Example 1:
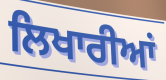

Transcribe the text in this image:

ਲਿਖਾਰੀਆਂ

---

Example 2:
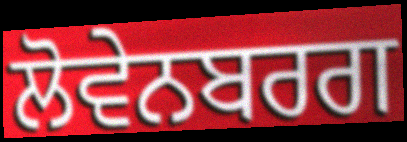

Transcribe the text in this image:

ਲੋਵੇਨਬਰਗ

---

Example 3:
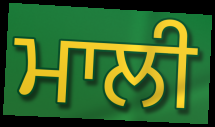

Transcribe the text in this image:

ਮਾਲੀ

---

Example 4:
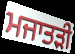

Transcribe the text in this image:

ਮਜਾਤੜੀ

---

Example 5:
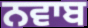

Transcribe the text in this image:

ਨਵਾਬ